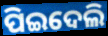
ପିଇଦେଲି